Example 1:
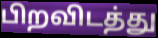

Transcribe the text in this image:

பிறவிடத்து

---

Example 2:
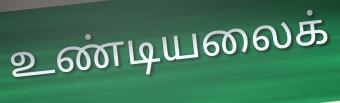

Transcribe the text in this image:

உண்டியலைக்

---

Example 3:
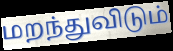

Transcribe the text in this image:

மறந்துவிடும்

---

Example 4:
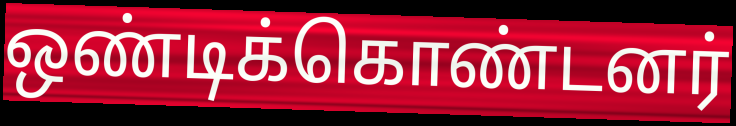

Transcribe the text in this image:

ஒண்டிக்கொண்டனர்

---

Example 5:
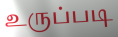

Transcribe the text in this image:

உருப்படி